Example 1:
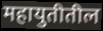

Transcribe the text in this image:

महायुतीतील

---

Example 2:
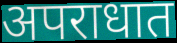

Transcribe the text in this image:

अपराधात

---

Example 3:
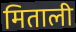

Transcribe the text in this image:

मिताली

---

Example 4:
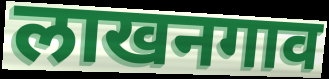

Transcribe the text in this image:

लाखनगाव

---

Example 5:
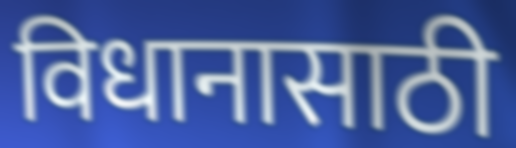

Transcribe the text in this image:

विधानासाठी